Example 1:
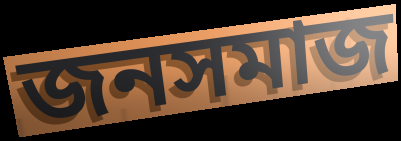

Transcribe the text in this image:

জনসমাজ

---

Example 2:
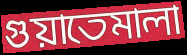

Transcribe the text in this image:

গুয়াতেমালা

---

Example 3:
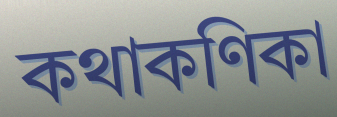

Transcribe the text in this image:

কথাকণিকা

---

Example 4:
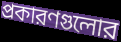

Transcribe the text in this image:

প্রকারণগুলোর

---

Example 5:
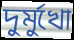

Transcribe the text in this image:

দুর্মুখো